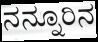
ನನ್ನೂರಿನ